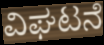
ವಿಘಟನೆ